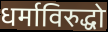
धर्माविरुद्धो